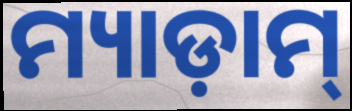
ମ୍ୟାଡ଼ାମ୍